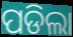
ପଡିଲା